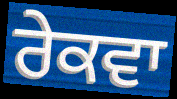
ਰੇਕਵਾ